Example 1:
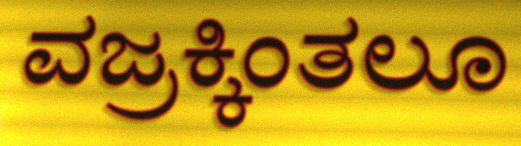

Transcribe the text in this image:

ವಜ್ರಕ್ಕಿಂತಲೂ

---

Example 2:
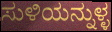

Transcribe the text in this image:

ಸುಳಿಯನ್ನುಳ್ಳ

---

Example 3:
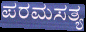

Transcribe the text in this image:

ಪರಮಸತ್ಯ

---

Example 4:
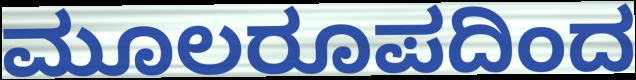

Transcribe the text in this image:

ಮೂಲರೂಪದಿಂದ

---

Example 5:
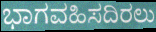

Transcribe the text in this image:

ಭಾಗವಹಿಸದಿರಲು